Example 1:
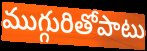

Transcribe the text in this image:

ముగ్గురితోపాటు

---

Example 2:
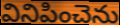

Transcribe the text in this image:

వినిపించెను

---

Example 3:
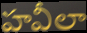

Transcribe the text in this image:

హవీలా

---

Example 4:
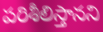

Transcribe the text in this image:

పరిశీలిస్తానని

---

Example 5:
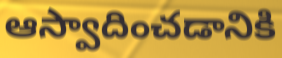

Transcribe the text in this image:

ఆస్వాదించడానికి